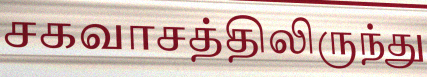
சகவாசத்திலிருந்து